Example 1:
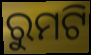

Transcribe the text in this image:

ରୁମଟି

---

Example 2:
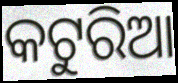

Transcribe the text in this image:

କଟୁରିଆ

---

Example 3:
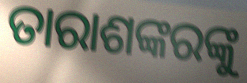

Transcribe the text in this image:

ତାରାଶଙ୍କରଙ୍କୁ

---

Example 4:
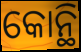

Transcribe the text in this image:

କୋନ୍ଥି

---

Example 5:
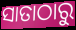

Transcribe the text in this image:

ସାତାଠାରୁ